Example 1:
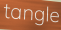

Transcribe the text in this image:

tangle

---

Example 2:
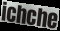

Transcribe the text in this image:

ichche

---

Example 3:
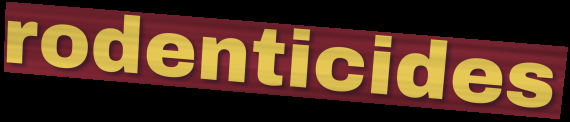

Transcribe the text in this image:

rodenticides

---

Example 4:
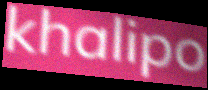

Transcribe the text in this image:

khalipo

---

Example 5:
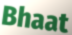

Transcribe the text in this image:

Bhaat